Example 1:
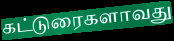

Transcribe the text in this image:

கட்டுரைகளாவது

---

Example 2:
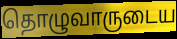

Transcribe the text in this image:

தொழுவாருடைய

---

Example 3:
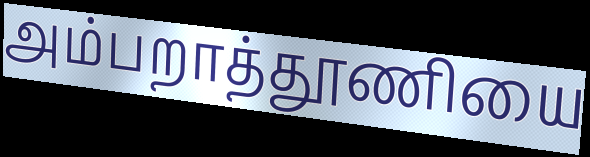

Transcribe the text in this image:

அம்பறாத்தூணியை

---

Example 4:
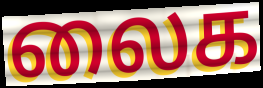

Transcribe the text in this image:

லைக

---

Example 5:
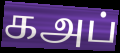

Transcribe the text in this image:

கஅப்